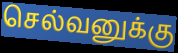
செல்வனுக்கு